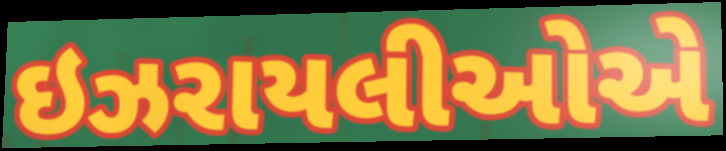
ઇઝરાયલીઓએ